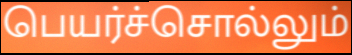
பெயர்ச்சொல்லும்